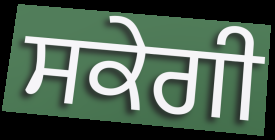
ਸਕੇਗੀ